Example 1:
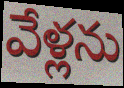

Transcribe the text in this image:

వేళ్లను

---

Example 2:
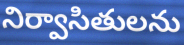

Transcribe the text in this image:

నిర్వాసితులను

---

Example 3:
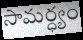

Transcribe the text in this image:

సామర్ధ్యం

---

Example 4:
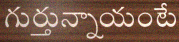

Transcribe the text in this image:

గుర్తున్నాయంటే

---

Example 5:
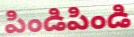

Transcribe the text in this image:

పిండిపిండి